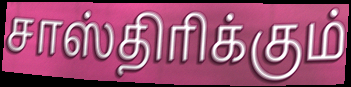
சாஸ்திரிக்கும்